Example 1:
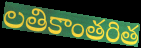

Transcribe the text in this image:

లతికాంతరిత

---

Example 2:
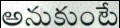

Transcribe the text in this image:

అనుకుంటే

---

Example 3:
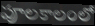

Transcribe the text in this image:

పూలకాలంలో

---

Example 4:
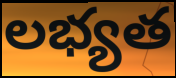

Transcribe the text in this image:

లభ్యత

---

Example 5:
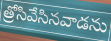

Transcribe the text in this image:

త్రోసివేసినవాడను